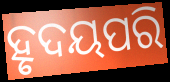
ହୃଦୟପରି